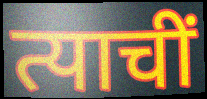
त्याचीं